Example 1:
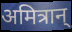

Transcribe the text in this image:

अमित्रान्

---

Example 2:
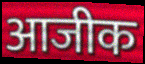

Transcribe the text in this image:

आजीक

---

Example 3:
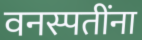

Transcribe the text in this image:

वनस्‍पतींना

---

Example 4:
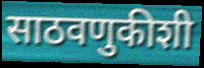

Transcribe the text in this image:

साठवणुकीशी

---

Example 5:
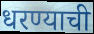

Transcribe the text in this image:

धरण्याची